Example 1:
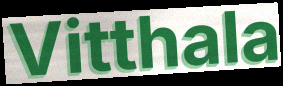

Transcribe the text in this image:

Vitthala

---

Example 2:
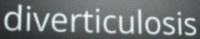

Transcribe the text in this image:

diverticulosis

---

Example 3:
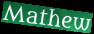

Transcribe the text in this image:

Mathew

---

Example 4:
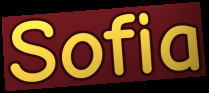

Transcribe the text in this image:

Sofia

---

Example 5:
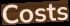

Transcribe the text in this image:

Costs